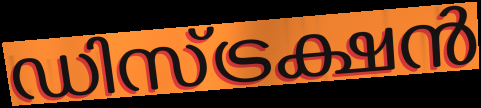
ഡിസ്ട്രക്ഷൻ